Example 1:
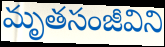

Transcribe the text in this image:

మృతసంజీవిని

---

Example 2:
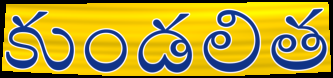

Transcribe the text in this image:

కుండలిత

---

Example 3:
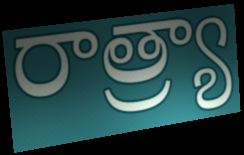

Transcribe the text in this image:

రాత్ర్యా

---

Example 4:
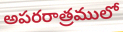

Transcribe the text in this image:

అపరరాత్రములో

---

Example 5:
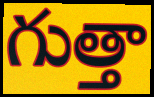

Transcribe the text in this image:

గుత్తా